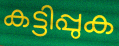
കട്ടിപ്പുക